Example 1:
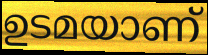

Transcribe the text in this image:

ഉടമയാണ്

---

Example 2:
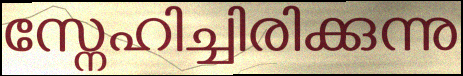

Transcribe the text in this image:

സ്നേഹിച്ചിരിക്കുന്നു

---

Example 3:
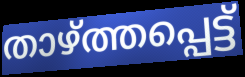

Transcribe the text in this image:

താഴ്ത്തപ്പെട്ട്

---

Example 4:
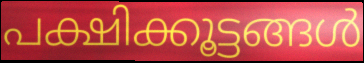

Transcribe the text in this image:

പക്ഷിക്കൂട്ടങ്ങൾ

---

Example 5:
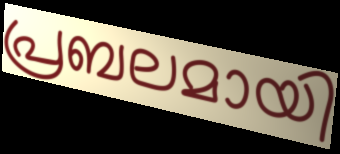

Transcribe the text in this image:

പ്രബലമായി